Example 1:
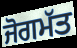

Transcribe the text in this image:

ਜੋਗਮੱਤ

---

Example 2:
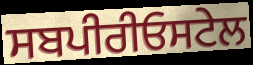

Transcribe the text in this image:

ਸਬਪੀਰੀਓਸਟੇਲ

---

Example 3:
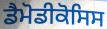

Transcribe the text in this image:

ਡੈਮੋਡੀਕੋਸਿਸ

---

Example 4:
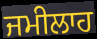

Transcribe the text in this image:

ਜਮੀਲਾਹ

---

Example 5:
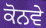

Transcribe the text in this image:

ਕੋਨਵੇ